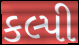
કલ્પી